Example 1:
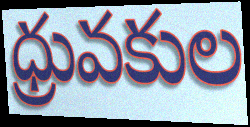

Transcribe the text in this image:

ధ్రువకుల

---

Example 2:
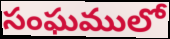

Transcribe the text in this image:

సంఘములో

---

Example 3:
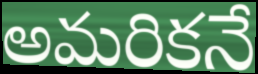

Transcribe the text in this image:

అమరికనే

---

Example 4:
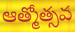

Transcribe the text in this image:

ఆత్మోత్సవ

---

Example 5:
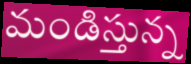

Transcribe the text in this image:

మండిస్తున్న